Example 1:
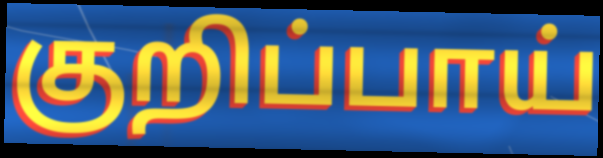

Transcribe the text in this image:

குறிப்பாய்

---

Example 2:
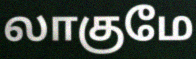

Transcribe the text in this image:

லாகுமே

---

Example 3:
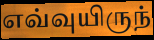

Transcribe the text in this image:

எவ்வுயிருந்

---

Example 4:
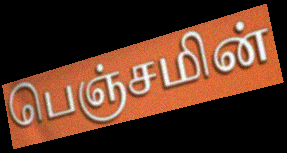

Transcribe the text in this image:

பெஞ்சமின்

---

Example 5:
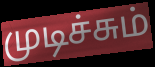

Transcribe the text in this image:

முடிச்சும்